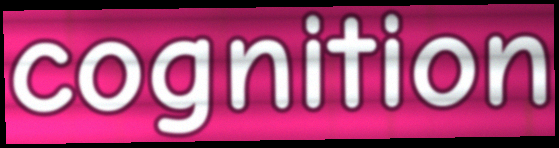
cognition